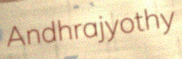
Andhrajyothy